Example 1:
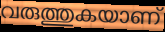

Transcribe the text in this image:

വരുത്തുകയാണ്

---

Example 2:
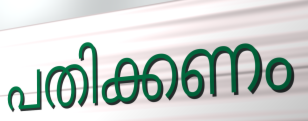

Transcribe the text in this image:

പതിക്കണം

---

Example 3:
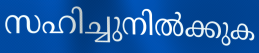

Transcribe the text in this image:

സഹിച്ചുനിൽക്കുക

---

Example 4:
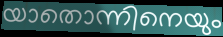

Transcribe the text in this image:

യാതൊന്നിനെയും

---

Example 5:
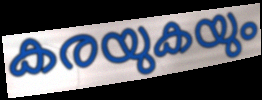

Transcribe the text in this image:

കരയുകയും